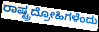
ರಾಷ್ಟ್ರದ್ರೋಹಿಗಳೆಂದು